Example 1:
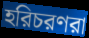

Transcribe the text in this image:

হরিচরণরা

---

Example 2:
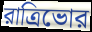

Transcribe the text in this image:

রাত্রিভোর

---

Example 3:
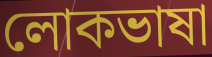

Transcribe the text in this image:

লোকভাষা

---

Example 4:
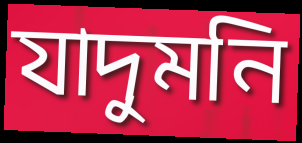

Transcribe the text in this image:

যাদুমনি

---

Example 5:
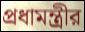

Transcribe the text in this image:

প্রধামন্ত্রীর